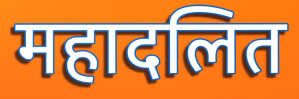
महादलित